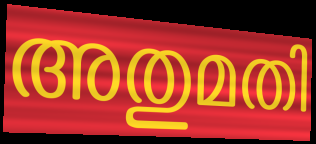
അതുമതി